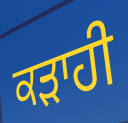
ਕੜਾਹੀ